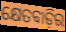
କ୍ଷେତବାଡ଼ିର